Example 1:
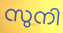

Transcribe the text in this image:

സുനി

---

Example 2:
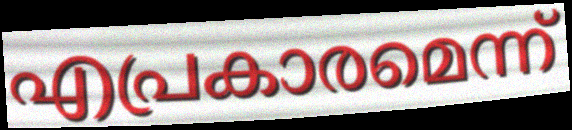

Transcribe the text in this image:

എപ്രകാരമെന്ന്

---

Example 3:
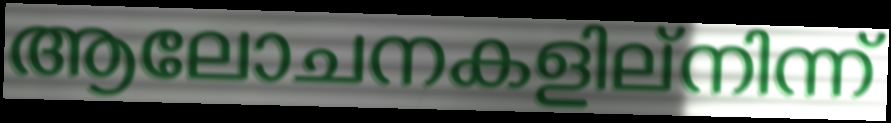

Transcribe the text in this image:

ആലോചനകളില്നിന്ന്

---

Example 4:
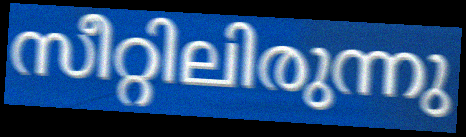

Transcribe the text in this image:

സീറ്റിലിരുന്നു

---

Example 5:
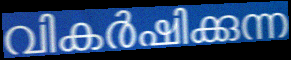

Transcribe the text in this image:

വികർഷിക്കുന്ന